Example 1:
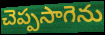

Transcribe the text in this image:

చెప్పసాగెను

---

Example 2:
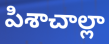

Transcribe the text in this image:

పిశాచాల్లా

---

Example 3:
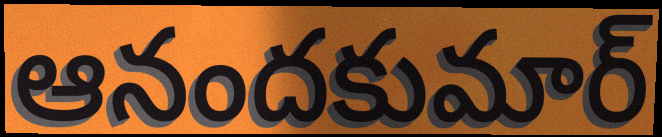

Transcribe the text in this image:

ఆనందకుమార్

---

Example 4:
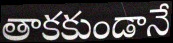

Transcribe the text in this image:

తాకకుండానే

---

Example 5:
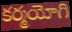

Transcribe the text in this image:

కర్మయోగి